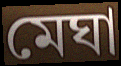
মেঘা